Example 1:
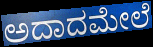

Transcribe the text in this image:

ಅದಾದಮೇಲೆ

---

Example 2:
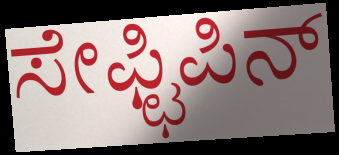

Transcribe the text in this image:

ಸೇಫ್ಟಿಪಿನ್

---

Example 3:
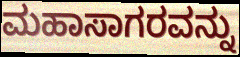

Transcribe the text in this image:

ಮಹಾಸಾಗರವನ್ನು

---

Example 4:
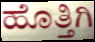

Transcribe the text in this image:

ಹೊತ್ತಿಗಿ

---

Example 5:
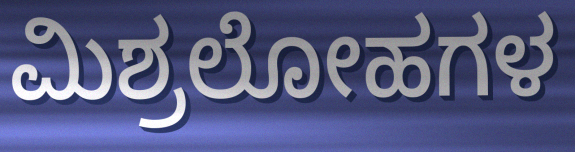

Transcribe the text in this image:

ಮಿಶ್ರಲೋಹಗಳ